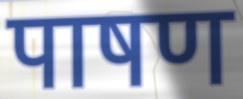
पाषण